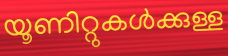
യൂണിറ്റുകൾക്കുള്ള